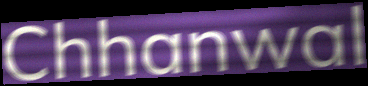
Chhanwal